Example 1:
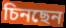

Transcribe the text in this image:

চিনছেন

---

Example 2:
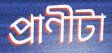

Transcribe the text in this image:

প্রাণীটা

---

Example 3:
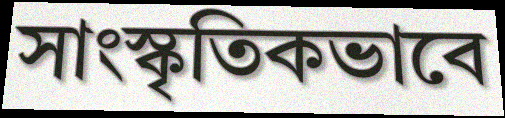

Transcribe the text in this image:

সাংস্কৃতিকভাবে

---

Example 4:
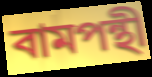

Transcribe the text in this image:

বামপন্থী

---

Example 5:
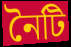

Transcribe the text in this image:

নৈটি